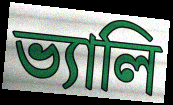
ভ্যালি